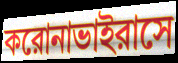
করোনাভাইরাসে